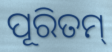
ପୂରିତମ୍